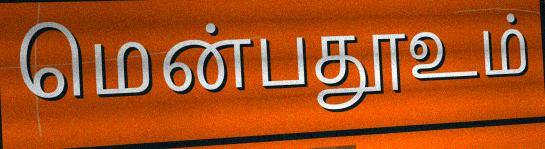
மென்பதூஉம்